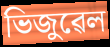
ভিজুৱেল